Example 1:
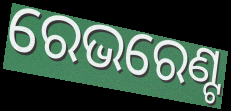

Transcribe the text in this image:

ରେଭରେଣ୍ଟ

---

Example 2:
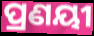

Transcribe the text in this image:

ପ୍ରଣୟୀ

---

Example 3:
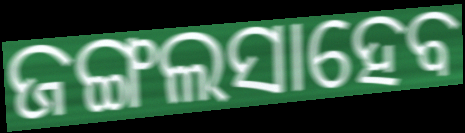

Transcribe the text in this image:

ଜଙ୍ଗଲସାହେବ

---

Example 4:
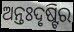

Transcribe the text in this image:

ଅନ୍ତଃଦୃଷ୍ଟିର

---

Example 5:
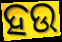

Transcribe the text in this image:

ହଉ